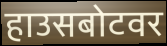
हाउसबोटवर